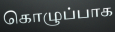
கொழுப்பாக